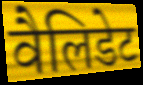
वैलिडेट